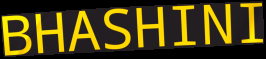
BHASHINI